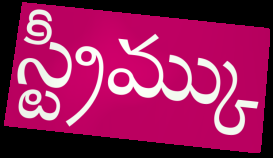
స్ట్రీమ్కు